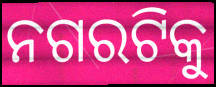
ନଗରଟିକୁ